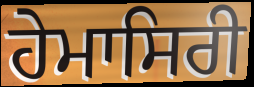
ਹੇਮਾਸਿਰੀ